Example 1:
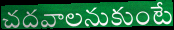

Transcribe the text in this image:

చదవాలనుకుంటే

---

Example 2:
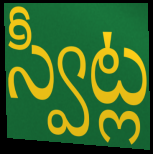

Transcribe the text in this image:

స్వీట్ల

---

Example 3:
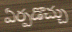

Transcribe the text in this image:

ఏర్పడొచ్చు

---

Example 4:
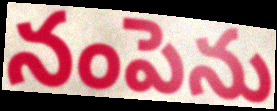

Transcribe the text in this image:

నంపెను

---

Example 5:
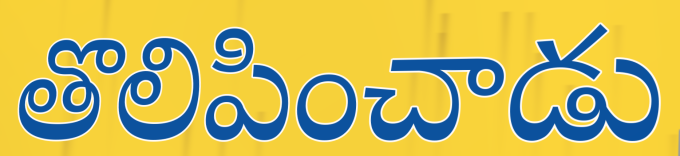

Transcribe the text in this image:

తొలిపించాడు